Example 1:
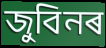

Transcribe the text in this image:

জুবিনৰ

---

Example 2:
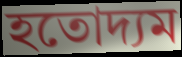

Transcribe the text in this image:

হতোদ্যম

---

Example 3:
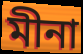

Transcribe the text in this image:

মীনা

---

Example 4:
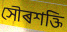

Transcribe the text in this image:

সৌৰশক্তি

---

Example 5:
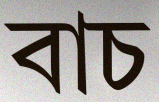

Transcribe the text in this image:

বাচ